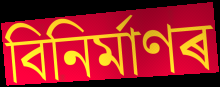
বিনিৰ্মাণৰ